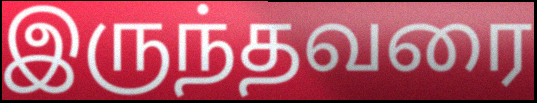
இருந்தவரை